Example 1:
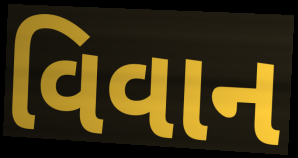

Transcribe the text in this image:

વિવાન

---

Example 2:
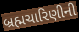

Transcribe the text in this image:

બ્રહ્મચારિણીની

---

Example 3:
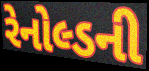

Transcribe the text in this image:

રેનોલ્ડની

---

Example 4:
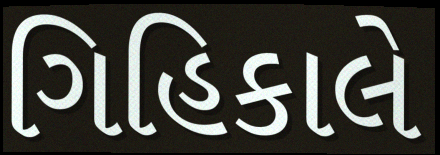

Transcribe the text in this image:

ગિહિકાલે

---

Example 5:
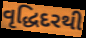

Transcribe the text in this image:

વૃદ્ધિદરથી